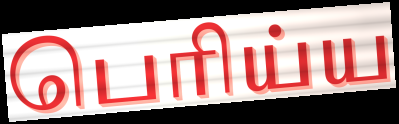
பெரிய்ய